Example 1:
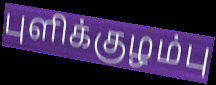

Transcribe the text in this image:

புளிக்குழம்பு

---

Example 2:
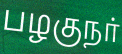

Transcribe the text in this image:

பழகுநர்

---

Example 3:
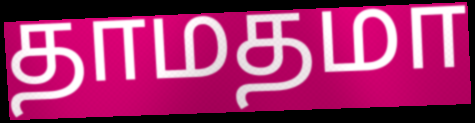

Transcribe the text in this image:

தாமதமா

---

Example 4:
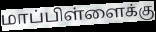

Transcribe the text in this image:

மாப்பிள்ளைக்கு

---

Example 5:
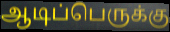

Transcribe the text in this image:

ஆடிப்பெருக்கு